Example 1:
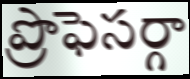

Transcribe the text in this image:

ప్రొఫెసర్గా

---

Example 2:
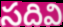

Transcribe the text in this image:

సదివి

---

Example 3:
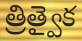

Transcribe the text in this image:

త్రిత్వైక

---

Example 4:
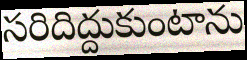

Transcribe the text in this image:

సరిదిద్దుకుంటాను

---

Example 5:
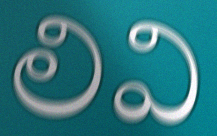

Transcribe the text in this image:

లివి